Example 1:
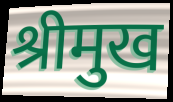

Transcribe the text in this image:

श्रीमुख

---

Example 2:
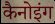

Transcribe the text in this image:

कैनोइंग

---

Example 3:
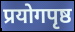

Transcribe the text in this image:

प्रयोगपृष्ठ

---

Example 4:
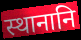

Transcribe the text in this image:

स्थानानि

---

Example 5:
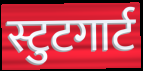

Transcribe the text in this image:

स्टुटगार्ट